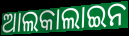
ଆଲକାଲାଇନ